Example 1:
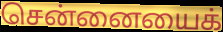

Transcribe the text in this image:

சென்னையைக்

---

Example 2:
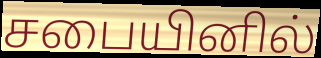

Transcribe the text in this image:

சபையினில்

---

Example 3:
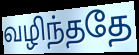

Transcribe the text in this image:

வழிந்ததே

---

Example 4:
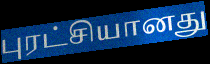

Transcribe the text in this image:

புரட்சியானது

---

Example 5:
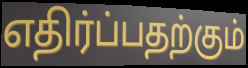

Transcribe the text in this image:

எதிர்ப்பதற்கும்